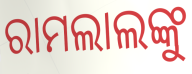
ରାମଲାଲଙ୍କୁ